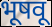
भूषवू